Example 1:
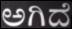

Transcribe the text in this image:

ಅಗಿದೆ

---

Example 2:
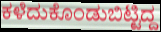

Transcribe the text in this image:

ಕಳೆದುಕೊಂಡುಬಿಟ್ಟಿದ್ದ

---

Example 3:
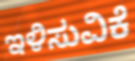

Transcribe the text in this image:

ಇಳಿಸುವಿಕೆ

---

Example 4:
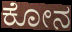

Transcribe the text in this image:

ಕೋನ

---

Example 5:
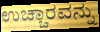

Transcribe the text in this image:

ಉಚ್ಚಾರವನ್ನು